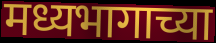
मध्यभागाच्या